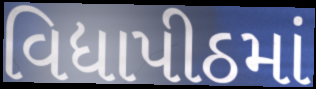
વિદ્યાપીઠમાં